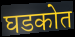
घडकोत